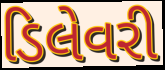
ડિલેવરી